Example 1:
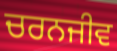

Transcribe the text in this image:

ਚਰਨਜੀਵ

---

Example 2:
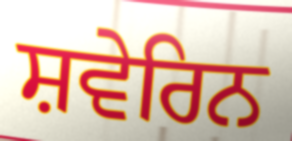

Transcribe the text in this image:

ਸ਼ਵੇਰਿਨ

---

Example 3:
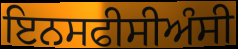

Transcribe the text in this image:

ਇਨਸਫੀਸੀਅੰਸੀ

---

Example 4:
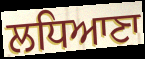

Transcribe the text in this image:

ਲਧਿਆਣਾ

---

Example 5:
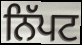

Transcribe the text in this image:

ਨਿੱਪਟ